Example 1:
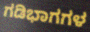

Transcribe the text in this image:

ಗಡಿಭಾಗಗಳ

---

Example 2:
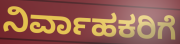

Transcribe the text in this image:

ನಿರ್ವಾಹಕರಿಗೆ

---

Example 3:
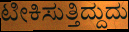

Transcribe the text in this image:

ಟೀಕಿಸುತ್ತಿದ್ದುದು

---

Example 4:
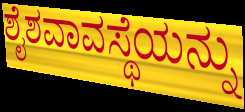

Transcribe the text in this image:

ಶೈಶವಾವಸ್ಥೆಯನ್ನು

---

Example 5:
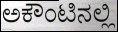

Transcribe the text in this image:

ಅಕೌಂಟಿನಲ್ಲಿ